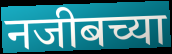
नजीबच्या